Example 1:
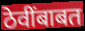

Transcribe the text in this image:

ठेवींबाबत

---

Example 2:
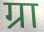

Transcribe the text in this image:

ग्रा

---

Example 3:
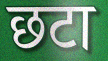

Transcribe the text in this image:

छटा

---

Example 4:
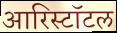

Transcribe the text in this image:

आरिस्टॉटल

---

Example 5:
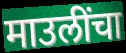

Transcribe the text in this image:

माउलींचा